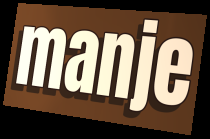
manje